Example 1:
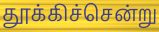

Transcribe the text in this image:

தூக்கிச்சென்று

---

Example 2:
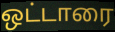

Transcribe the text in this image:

ஒட்டாரை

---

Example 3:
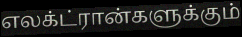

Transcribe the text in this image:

எலக்ட்ரான்களுக்கும்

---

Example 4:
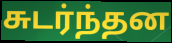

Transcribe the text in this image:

சுடர்ந்தன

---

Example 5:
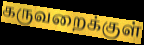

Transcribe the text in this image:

கருவறைக்குள்